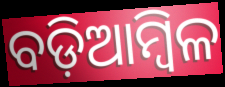
ବଡ଼ିଆମ୍ବିଳ